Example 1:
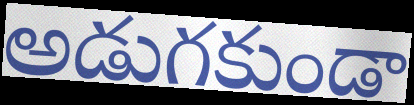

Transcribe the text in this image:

అడుగకుండా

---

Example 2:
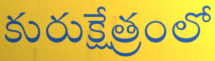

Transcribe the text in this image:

కురుక్షేత్రంలో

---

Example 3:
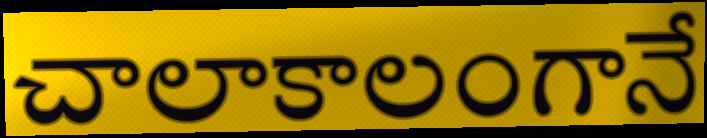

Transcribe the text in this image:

చాలాకాలంగానే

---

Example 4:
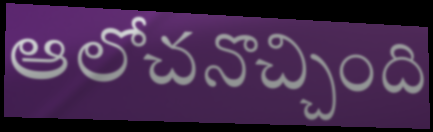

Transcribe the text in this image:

ఆలోచనొచ్చింది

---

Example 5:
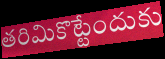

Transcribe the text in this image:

తరిమికొట్టేందుకు